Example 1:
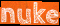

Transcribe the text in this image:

nuke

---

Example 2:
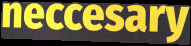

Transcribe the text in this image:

neccesary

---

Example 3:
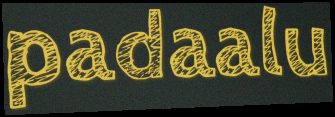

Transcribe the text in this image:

padaalu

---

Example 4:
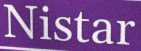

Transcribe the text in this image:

Nistar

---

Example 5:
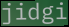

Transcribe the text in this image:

jidgi